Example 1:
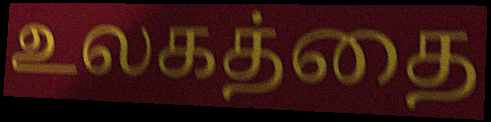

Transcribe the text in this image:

உலகத்தை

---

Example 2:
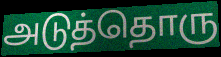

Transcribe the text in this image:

அடுத்தொரு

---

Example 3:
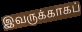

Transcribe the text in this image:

இவருக்காகப்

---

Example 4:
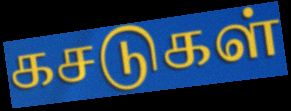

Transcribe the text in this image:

கசடுகள்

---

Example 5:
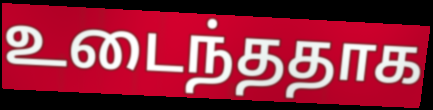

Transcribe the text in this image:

உடைந்ததாக